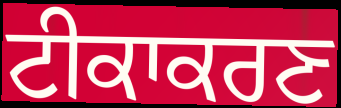
ਟੀਕਾਕਰਣ